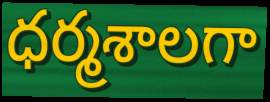
ధర్మశాలగా